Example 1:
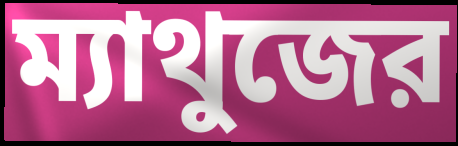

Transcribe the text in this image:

ম্যাথুজের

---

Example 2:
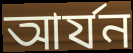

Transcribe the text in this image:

আর্যন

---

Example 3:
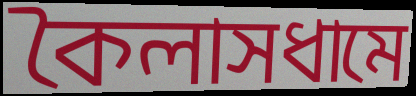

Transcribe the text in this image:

কৈলাসধামে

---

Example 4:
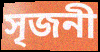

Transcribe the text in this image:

সৃজনী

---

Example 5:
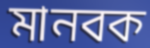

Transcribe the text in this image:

মানবক